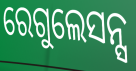
ରେଗୁଲେସନ୍ସ